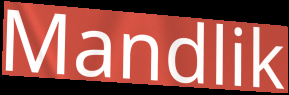
Mandlik